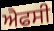
ਐਫਸੀ